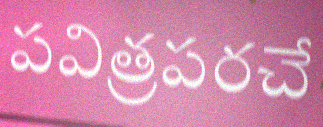
పవిత్రపరచే